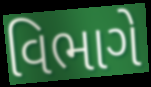
વિભાગે